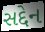
સદ્દેન